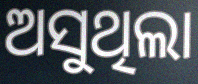
ଅସୁଥିଲା